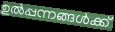
ഉൽപ്പന്നങ്ങൾക്ക്